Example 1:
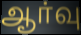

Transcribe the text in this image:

ஆர்வு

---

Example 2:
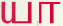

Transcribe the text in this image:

யா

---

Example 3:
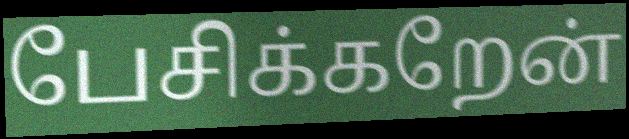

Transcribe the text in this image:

பேசிக்கறேன்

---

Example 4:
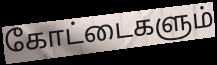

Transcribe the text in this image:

கோட்டைகளும்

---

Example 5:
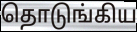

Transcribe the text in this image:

தொடுங்கிய